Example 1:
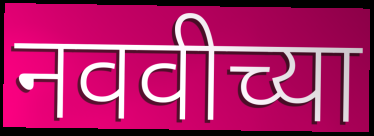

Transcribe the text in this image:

नववीच्या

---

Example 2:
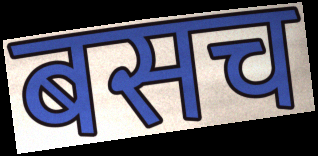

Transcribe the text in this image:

बसच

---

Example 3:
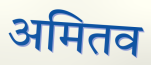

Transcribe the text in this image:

अमितव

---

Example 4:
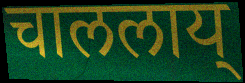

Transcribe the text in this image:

चाललाय्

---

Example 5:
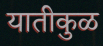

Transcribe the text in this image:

यातीकुळ